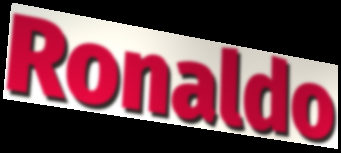
Ronaldo